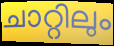
ചാറ്റിലും